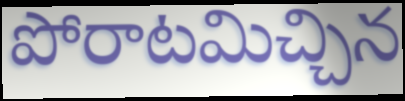
పోరాటమిచ్చిన